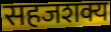
सहजशक्य